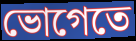
ভোগেতে